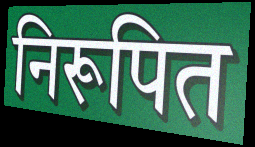
निरूपित